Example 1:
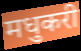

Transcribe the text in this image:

मधुकरी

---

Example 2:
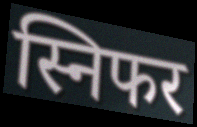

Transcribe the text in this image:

स्निफर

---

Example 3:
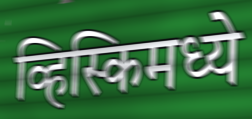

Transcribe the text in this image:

व्हिस्किमध्ये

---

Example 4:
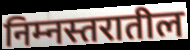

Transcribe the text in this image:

निम्नस्तरातील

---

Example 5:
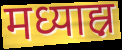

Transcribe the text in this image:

मध्याह्न